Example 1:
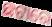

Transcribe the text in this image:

ଛଟାରେ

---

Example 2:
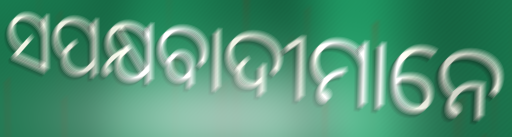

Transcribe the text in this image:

ସପକ୍ଷବାଦୀମାନେ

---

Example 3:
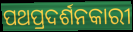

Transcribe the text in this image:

ପଥପ୍ରଦର୍ଶନକାରୀ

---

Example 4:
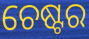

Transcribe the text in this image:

ଚେଷ୍ଟର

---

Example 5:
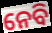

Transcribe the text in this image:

ନେବି